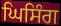
ਘਿਸਿੰਗ